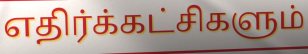
எதிர்க்கட்சிகளும்